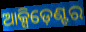
ଆକ୍ସିଡ଼େଣ୍ଟର